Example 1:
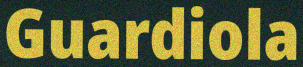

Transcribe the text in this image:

Guardiola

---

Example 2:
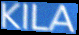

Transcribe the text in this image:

KILA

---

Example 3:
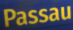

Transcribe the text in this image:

Passau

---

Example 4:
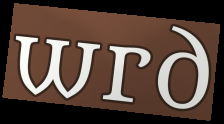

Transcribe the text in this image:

wrd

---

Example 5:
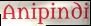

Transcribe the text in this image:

Anipindi